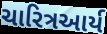
ચારિત્રઆર્ય